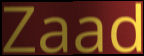
Zaad